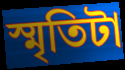
স্মৃতিটা